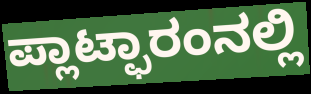
ಪ್ಲಾಟ್ಫಾರಂನಲ್ಲಿ